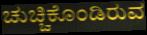
ಚುಚ್ಚಿಕೊಂಡಿರುವ